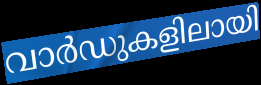
വാർഡുകളിലായി